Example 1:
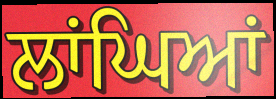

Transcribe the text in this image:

ਲਾਂਘਿਆਂ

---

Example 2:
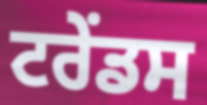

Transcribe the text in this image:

ਟਰੇਂਡਸ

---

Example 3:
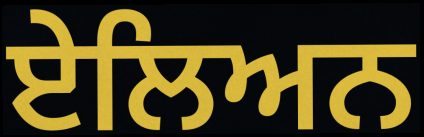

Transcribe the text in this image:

ਏਲਿਅਨ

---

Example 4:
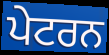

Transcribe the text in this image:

ਪੇਟਰਨ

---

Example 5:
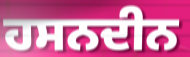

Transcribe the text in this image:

ਹਸਨਦੀਨ